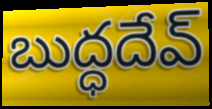
బుద్ధదేవ్